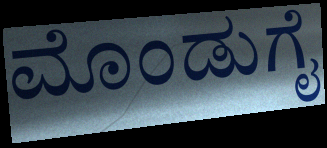
ಮೊಂಡುಗೈ